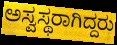
ಅಸ್ವಸ್ಥರಾಗಿದ್ದರು